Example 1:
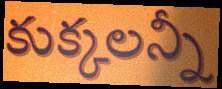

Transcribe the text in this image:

కుక్కలన్నీ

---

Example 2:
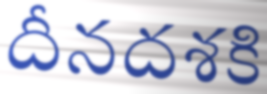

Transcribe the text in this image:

దీనదశకి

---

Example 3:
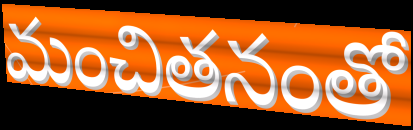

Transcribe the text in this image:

మంచితనంతో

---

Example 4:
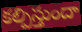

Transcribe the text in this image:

కల్పిస్తుందా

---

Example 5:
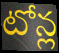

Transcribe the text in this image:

టోన్ల